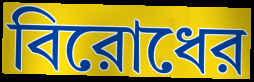
বিরোধের